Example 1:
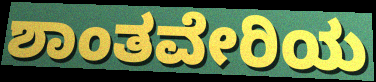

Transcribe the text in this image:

ಶಾಂತವೇರಿಯ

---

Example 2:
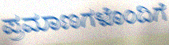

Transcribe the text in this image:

ಪ್ರಮಾಣಗಳೊಂದಿಗೆ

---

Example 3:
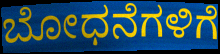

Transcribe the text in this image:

ಬೋಧನೆಗಳಿಗೆ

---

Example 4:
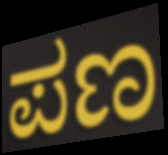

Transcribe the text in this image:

ಪಣ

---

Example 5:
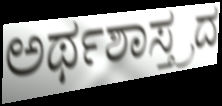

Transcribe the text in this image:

ಅರ್ಥಶಾಸ್ತ್ರದ